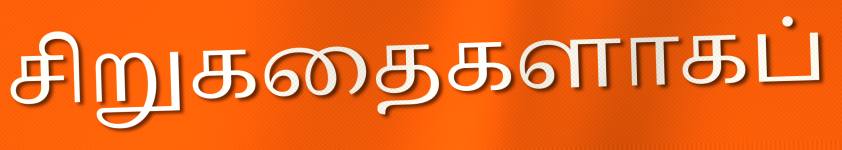
சிறுகதைகளாகப்